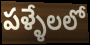
పళ్ళేలలో